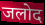
जलोद